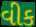
વીક